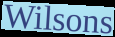
Wilsons